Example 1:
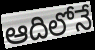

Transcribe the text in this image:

ఆదిలోనే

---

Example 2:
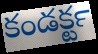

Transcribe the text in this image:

కండక్టర్‍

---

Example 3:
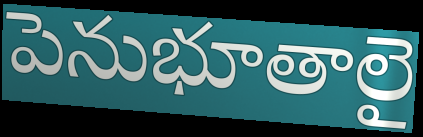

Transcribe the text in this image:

పెనుభూతాలై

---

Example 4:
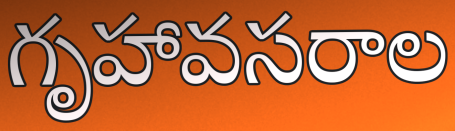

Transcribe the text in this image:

గృహావసరాల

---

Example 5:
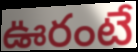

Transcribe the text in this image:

ఊరంటే